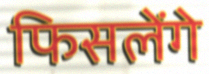
फिसलेंगे